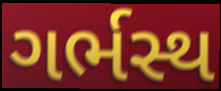
ગર્ભસ્થ